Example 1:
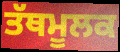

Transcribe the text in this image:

ਤੱਥਮੂਲਕ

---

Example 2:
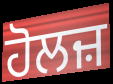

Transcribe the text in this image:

ਹੋਲਜ਼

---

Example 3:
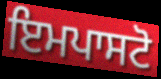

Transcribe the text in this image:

ਇਮਪਾਸਟੋ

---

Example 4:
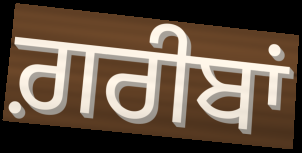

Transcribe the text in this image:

ਗ਼ਰੀਬਾਂ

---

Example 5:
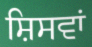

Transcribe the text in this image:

ਸ਼ਿਸਵਾਂ